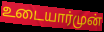
உடையார்முன்